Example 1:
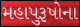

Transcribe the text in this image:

મહાપુરૂષોના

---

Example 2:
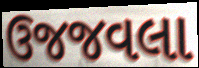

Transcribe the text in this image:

ઉજજવલા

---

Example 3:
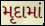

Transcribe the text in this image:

મૃદામાં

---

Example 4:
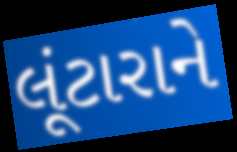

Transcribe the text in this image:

લૂંટારાને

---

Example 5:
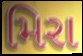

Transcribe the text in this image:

મિરા